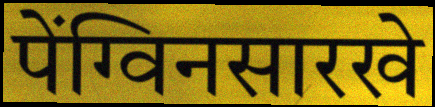
पेंग्विनसारखे